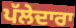
ਪੱਲੇਦਾਰਾ